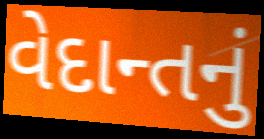
વેદાન્તનું